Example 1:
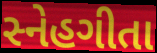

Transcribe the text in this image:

સ્નેહગીતા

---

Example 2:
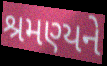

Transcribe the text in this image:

શ્રમણ્યને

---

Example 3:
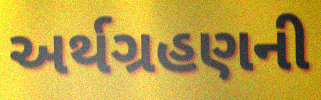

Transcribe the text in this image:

અર્થગ્રહણની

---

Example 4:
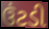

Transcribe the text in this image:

ઉંટડી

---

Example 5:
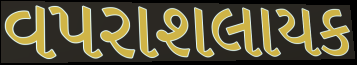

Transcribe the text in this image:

વપરાશલાયક